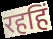
रहहिं